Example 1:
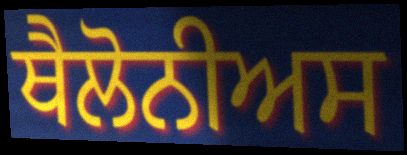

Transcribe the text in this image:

ਥੈਲੋਨੀਅਸ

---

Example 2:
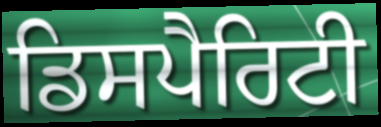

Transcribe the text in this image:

ਡਿਸਪੈਰਿਟੀ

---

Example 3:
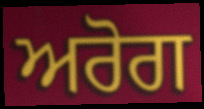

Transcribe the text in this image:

ਅਰੋਗ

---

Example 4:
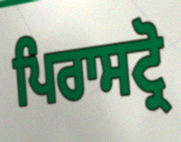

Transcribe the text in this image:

ਪਿਰਾਸਟ੍ਰੋ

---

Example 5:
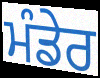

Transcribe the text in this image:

ਮੰਡੇਰ